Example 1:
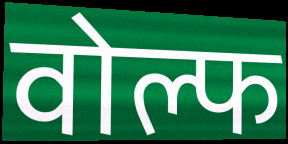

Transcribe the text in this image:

वोल्फ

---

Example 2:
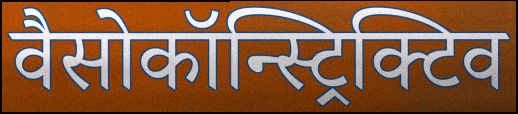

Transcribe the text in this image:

वैसोकॉन्स्ट्रिक्टिव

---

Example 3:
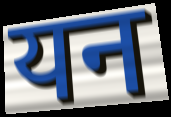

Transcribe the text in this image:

यन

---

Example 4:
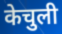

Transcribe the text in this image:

केचुली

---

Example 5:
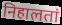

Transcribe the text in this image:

निहालतां